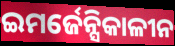
ଇମର୍ଜେନ୍ସିକାଳୀନ